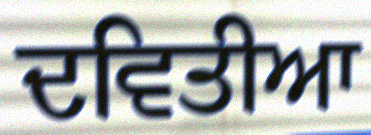
ਦਵਿਤੀਆ